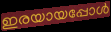
ഇരയായപ്പോൾ